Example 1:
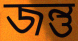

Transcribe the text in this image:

জন্তু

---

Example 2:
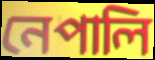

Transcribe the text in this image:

নেপালি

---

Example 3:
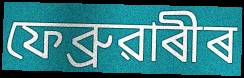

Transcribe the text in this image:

ফেব্ৰুৱাৰীৰ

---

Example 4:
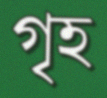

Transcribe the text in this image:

গৃহ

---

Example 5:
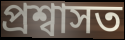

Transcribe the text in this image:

প্ৰশ্বাসত